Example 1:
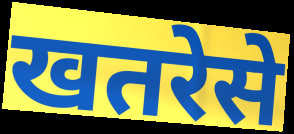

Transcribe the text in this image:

खतरेसे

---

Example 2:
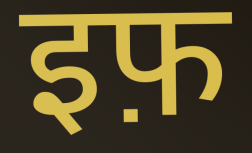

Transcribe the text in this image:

इफ़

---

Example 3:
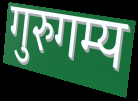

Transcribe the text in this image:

गुरुगम्य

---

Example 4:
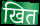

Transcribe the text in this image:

खित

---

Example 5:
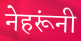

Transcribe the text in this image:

नेहरूंनी